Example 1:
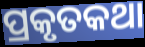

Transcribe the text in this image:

ପ୍ରକୃତକଥା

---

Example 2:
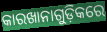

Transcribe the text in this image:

କାରଖାନାଗୁଡ଼ିକରେ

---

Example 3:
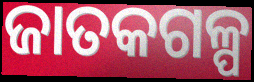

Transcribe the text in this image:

ଜାତକଗଳ୍ପ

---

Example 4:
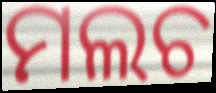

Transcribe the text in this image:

ମଲଚ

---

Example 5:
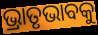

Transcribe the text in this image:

ଭ୍ରାତୃଭାବକୁ